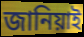
জানিয়াই